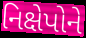
નિક્ષેપોને